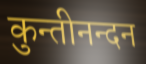
कुन्तीनन्दन